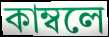
কাম্বলে